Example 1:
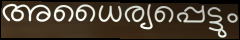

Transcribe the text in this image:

അധൈര്യപ്പെട്ടും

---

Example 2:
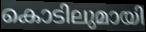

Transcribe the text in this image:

കൊടിലുമായി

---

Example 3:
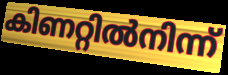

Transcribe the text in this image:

കിണറ്റിൽനിന്ന്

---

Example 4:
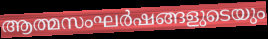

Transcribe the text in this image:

ആത്മസംഘർഷങ്ങളുടെയും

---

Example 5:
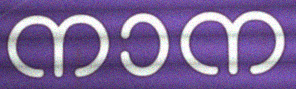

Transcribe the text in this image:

നാന